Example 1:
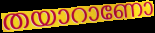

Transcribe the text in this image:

തയാറാണോ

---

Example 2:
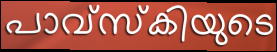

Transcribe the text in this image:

പാവ്സ്കിയുടെ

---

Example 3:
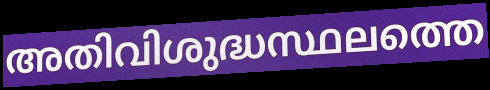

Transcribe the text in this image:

അതിവിശുദ്ധസ്ഥലത്തെ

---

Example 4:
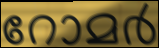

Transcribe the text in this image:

റോമർ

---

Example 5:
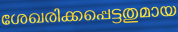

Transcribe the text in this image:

ശേഖരിക്കപ്പെട്ടതുമായ